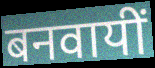
बनवायीं